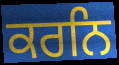
ਕਰਨਿ